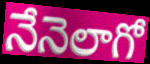
నేనెలాగో